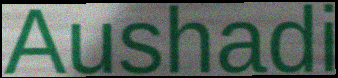
Aushadi